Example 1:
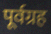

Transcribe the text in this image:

पूर्वग्रह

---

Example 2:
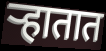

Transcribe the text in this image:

ऱ्हातात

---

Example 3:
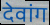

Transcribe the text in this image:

देवांग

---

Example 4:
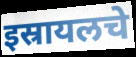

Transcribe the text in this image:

इस्रायलचे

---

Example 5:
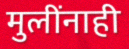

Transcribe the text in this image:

मुलींनाही